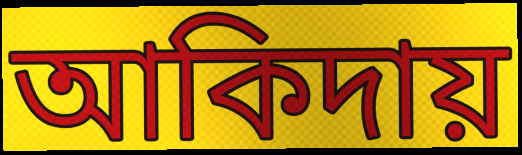
আকিদায়